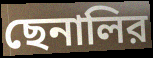
ছেনালির